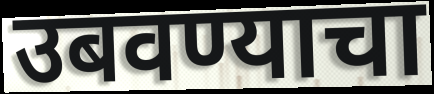
उबवण्याचा